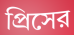
প্রিসের